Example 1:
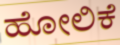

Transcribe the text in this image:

ಹೋಲಿಕೆ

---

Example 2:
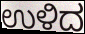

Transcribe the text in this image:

ಉಳಿದ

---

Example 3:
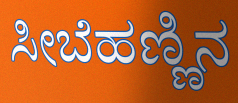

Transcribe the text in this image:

ಸೀಬೆಹಣ್ಣಿನ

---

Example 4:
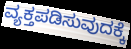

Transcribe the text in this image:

ವ್ಯಕ್ತಪಡಿಸುವುದಕ್ಕೆ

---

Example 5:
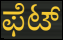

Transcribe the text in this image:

ಫೆಟ್